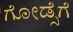
ಗೋಡ್ಸೆಗೆ